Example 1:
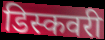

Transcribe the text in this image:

डिस्कवरी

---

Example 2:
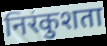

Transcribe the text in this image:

निरंकुशता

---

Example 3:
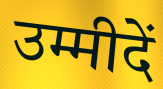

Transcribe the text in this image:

उम्मीदें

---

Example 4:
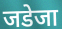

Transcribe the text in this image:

जडेजा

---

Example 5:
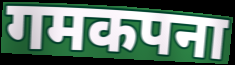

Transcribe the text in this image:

गमकपना